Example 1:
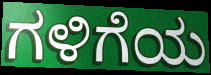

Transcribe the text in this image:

ಗಳಿಗೆಯ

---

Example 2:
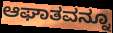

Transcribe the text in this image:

ಆಘಾತವನ್ನೂ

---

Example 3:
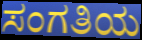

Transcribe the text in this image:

ಸಂಗತಿಯ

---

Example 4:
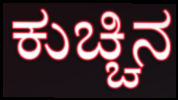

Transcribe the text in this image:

ಕುಚ್ಚಿನ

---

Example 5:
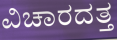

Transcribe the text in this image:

ವಿಚಾರದತ್ತ